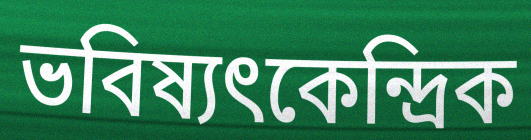
ভবিষ্যৎকেন্দ্রিক